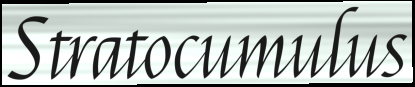
Stratocumulus